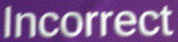
Incorrect